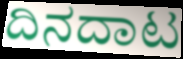
ದಿನದಾಟ